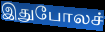
இதுபோலச்